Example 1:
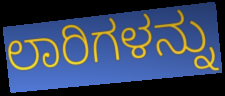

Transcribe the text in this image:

ಲಾರಿಗಳನ್ನು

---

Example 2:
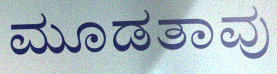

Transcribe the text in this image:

ಮೂಡತಾವು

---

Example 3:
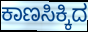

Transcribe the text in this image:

ಕಾಣಸಿಕ್ಕಿದ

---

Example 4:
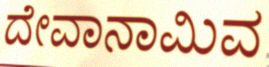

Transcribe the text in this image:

ದೇವಾನಾಮಿವ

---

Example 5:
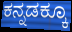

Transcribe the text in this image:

ಕನ್ನಡಕ್ಕೂ